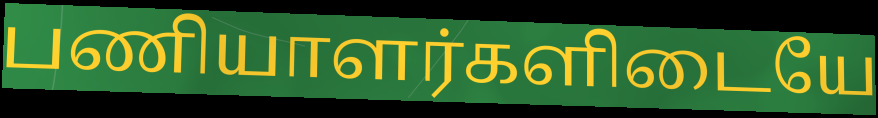
பணியாளர்களிடையே